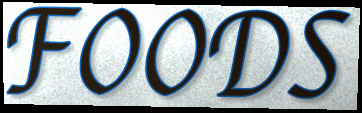
FOODS